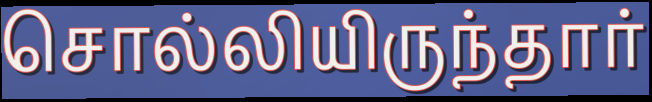
சொல்லியிருந்தார்